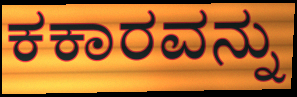
ಕಕಾರವನ್ನು